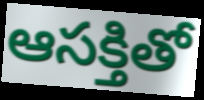
ఆసక్తితో